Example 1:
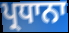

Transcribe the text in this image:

ਪ੍ਰਧਾਨਾ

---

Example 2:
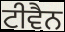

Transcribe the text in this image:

ਟੀਵੈਨ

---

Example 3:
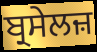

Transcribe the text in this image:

ਬ੍ਰਸੇਲਜ਼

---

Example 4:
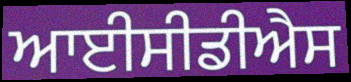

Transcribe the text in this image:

ਆਈਸੀਡੀਐਸ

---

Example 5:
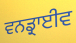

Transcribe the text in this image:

ਵਨਡ੍ਰਾਈਵ